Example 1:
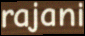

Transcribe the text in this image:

rajani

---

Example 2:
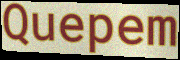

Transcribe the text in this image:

Quepem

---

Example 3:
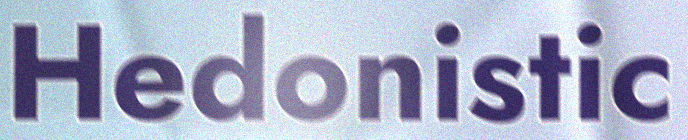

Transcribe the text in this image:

Hedonistic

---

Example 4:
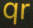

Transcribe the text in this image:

qr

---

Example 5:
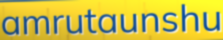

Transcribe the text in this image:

amrutaunshu